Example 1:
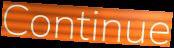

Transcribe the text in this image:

Continue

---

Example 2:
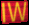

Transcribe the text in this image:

IW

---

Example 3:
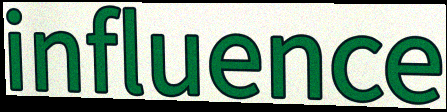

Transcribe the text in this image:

influence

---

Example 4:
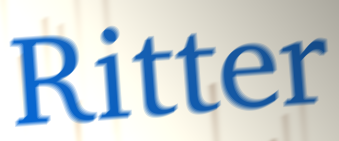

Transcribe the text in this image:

Ritter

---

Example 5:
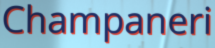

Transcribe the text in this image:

Champaneri